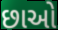
છાઓ